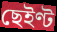
ছেইণ্ট